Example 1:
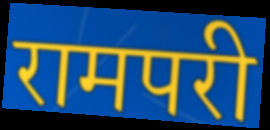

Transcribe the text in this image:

रामपरी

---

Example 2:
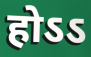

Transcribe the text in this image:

होऽऽ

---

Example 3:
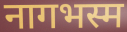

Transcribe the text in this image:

नागभस्म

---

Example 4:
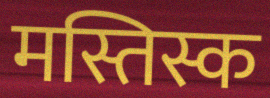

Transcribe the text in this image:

मस्तिस्क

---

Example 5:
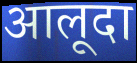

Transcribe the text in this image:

आलूदा